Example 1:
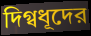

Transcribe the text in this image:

দিগ্বধূদের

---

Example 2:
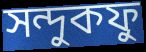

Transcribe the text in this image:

সন্দুকফু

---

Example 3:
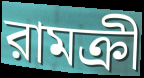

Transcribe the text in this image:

রামক্রী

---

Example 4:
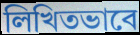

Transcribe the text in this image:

লিখিতভাবে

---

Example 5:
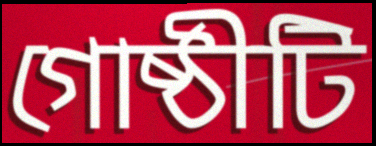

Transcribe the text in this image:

গোষ্ঠীটি